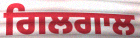
ਗਿਲਗਾਲ